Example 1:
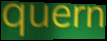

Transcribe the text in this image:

quern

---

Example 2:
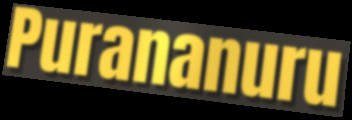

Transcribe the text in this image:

Purananuru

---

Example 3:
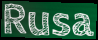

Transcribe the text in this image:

Rusa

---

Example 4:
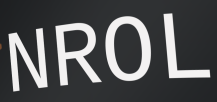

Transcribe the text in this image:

NROL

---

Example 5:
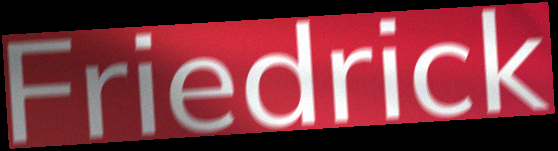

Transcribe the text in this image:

Friedrick